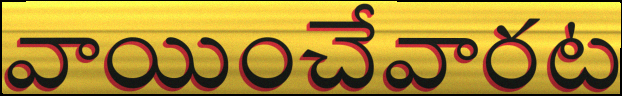
వాయించేవారట